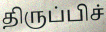
திருப்பிச்